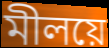
মীলয়ে